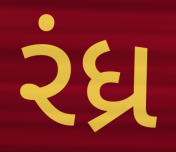
રંધ્ર